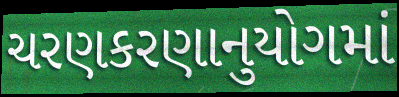
ચરણકરણાનુયોગમાં